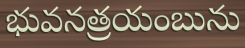
భువనత్రయంబును